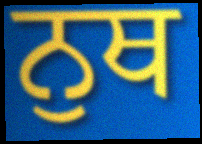
ਨੁਥ